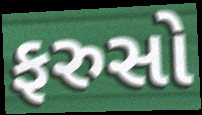
ફરુસો